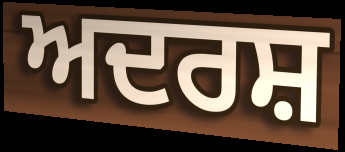
ਅਦਰਸ਼